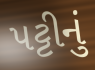
પટ્ટીનું